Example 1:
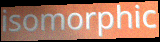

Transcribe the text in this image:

isomorphic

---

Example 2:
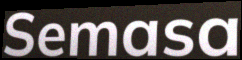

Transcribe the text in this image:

Semasa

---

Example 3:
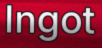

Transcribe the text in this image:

Ingot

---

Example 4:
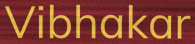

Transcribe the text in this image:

Vibhakar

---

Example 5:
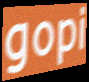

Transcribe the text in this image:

gopi